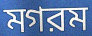
মগরম